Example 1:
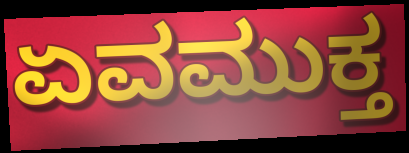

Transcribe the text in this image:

ಏವಮುಕ್ತ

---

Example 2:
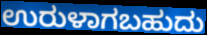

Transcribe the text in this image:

ಉರುಳಾಗಬಹುದು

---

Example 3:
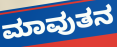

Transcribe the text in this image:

ಮಾವುತನ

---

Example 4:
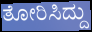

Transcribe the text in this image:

ತೋರಿಸಿದ್ದು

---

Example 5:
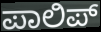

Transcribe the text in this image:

ಪಾಲಿಪ್